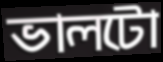
ভালটো